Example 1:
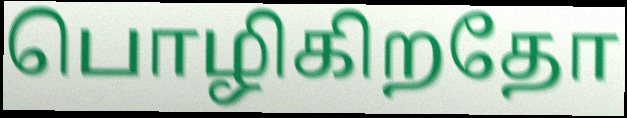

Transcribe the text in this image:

பொழிகிறதோ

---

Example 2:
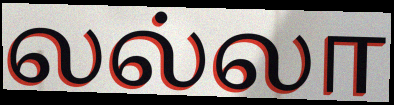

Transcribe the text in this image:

லல்லா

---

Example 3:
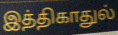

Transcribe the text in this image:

இத்திகாதுல்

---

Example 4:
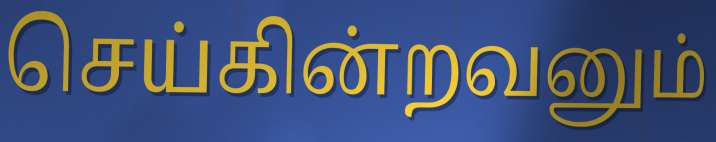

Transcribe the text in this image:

செய்கின்றவனும்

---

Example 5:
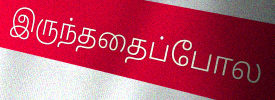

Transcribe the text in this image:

இருந்ததைப்போல